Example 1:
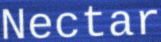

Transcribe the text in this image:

Nectar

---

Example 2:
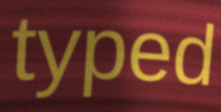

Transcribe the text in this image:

typed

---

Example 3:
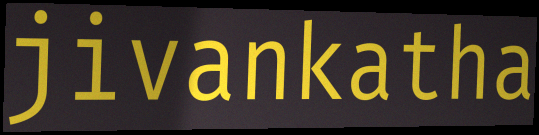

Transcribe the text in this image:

jivankatha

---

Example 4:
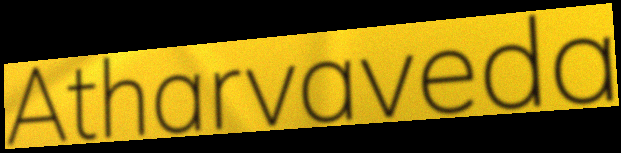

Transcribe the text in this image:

Atharvaveda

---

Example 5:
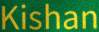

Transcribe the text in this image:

Kishan